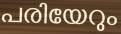
പരിയേറും